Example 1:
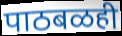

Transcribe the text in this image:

पाठबळही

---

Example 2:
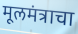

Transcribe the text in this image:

मूलमंत्राचा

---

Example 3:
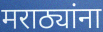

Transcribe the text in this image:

मराठ्यांना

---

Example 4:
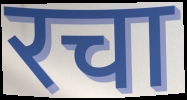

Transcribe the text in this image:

रचा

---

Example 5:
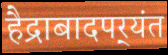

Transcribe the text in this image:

हैद्राबादपर्यंत